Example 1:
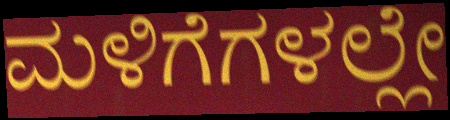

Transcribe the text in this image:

ಮಳಿಗೆಗಳಲ್ಲೇ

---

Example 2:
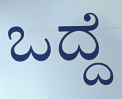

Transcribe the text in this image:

ಒದ್ದೆ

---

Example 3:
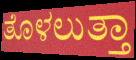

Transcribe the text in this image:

ತೊಳಲುತ್ತಾ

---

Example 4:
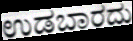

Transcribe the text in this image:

ಉಡಬಾರದು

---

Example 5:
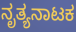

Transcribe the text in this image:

ನೃತ್ಯನಾಟಕ